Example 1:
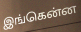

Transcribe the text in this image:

இங்கென்ன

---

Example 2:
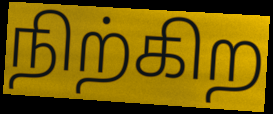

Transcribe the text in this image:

நிற்கிற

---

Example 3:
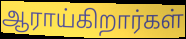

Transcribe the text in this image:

ஆராய்கிறார்கள்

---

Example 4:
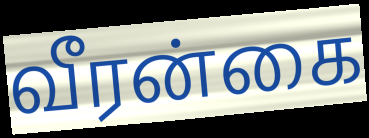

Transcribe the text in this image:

வீரன்கை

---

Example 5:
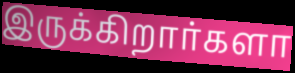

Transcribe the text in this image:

இருக்கிறார்களா